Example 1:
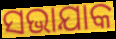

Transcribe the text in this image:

ସଭାଯାକ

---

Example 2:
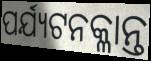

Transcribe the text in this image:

ପର୍ଯ୍ୟଟନକ୍ଳାନ୍ତ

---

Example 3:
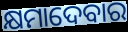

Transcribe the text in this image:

କ୍ଷମାଦେବାର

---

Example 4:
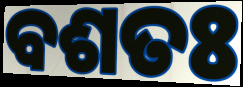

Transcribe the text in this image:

ବଶତଃ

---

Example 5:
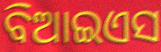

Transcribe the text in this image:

ବିଆଇଏସ